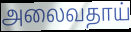
அலைவதாய்